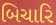
બિચારિ